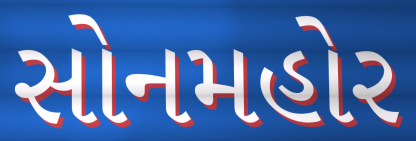
સોનમહોર